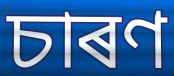
চাৰণ